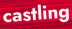
castling